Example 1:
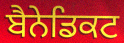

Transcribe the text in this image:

ਬੈਨੇਡਿਕਟ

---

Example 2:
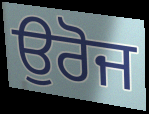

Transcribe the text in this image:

ਉਰੋਜ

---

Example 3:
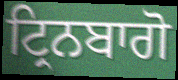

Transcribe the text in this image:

ਟ੍ਰਿਨਬਾਗੋ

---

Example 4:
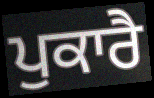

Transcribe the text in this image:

ਪੁਕਾਰੈ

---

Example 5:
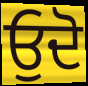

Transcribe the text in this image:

ਓੁਦੋ